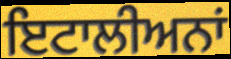
ਇਟਾਲੀਅਨਾਂ